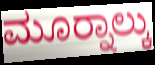
ಮೂರ‍್ನಾಲ್ಕು